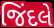
જિંદલે